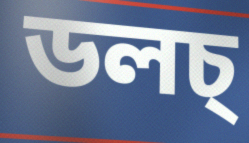
ডলচ্